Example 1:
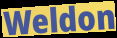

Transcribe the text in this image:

Weldon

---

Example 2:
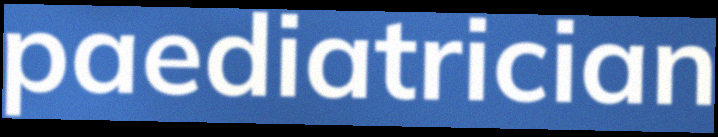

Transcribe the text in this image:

paediatrician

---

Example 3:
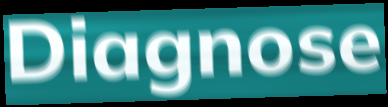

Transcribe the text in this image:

Diagnose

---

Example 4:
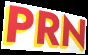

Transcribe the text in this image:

PRN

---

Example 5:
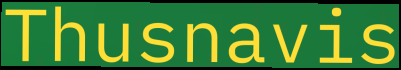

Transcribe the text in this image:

Thusnavis